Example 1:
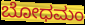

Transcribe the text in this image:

ಬೋಧಮಂ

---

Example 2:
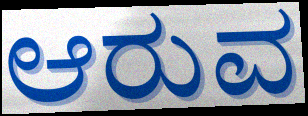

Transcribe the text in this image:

ಆರುವ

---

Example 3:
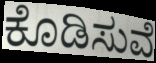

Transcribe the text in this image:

ಕೊಡಿಸುವೆ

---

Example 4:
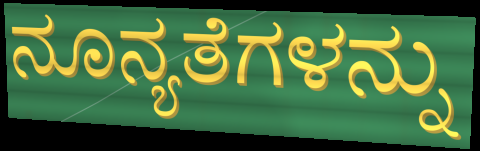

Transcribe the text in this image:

ನೂನ್ಯತೆಗಳನ್ನು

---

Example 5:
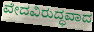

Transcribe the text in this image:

ವೇದವಿರುದ್ಧವಾದ